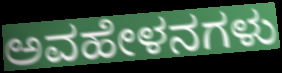
ಅವಹೇಳನಗಳು